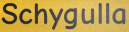
Schygulla